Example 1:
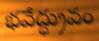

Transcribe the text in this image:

భవేద్ధ్రువం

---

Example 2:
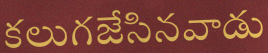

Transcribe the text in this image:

కలుగజేసినవాడు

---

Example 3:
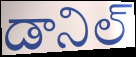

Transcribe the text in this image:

డానిల్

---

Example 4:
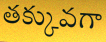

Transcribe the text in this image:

తక్కువగా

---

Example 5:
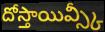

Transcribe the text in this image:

దోస్తాయివ్స్కీ